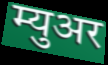
म्युअर